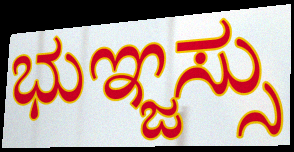
ಭುಞ್ಜಸ್ಸು